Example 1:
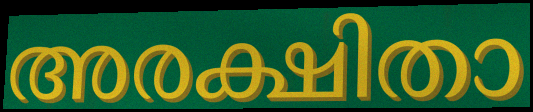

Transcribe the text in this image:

അരക്ഷിതാ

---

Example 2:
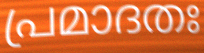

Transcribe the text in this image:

പ്രമാദതഃ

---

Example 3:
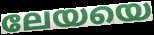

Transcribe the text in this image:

ലേയയെ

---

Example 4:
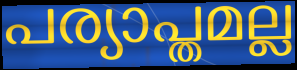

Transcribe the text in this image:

പര്യാപ്തമല്ല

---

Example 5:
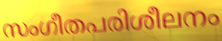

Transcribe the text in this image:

സംഗീതപരിശീലനം